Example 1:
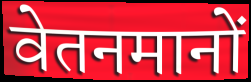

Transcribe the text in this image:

वेतनमानों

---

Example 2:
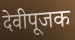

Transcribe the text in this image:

देवीपूजक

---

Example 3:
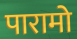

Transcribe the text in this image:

पारामो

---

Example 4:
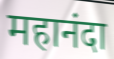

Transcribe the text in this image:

महानंदा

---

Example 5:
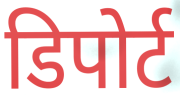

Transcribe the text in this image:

डिपोर्ट